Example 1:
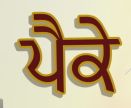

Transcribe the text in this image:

ਪੈਕੇ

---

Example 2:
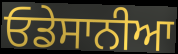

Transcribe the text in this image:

ਓਡੇਸਾਨੀਆ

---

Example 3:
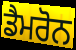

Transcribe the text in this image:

ਡੈਮਰੋਨ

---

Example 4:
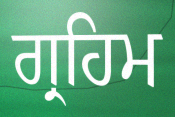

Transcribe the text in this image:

ਗ੍ਰਹਿਮ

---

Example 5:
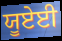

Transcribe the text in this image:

ਯੂਏਈ